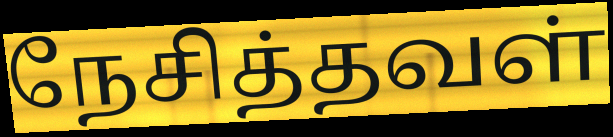
நேசித்தவள்